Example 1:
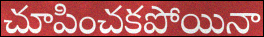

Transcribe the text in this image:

చూపించకపోయినా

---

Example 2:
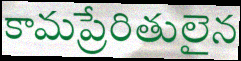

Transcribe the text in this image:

కామప్రేరితులైన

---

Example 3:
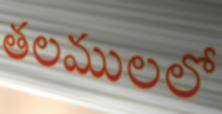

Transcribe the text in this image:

తలములలో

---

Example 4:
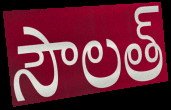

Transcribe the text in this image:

సౌలత్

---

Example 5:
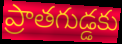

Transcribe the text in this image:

ప్రాతగుడ్డకు